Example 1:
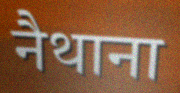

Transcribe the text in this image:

नैथाना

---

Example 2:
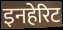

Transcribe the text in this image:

इनहेरिट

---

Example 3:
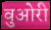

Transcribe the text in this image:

वुओरी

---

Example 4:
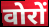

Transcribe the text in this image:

वोरों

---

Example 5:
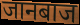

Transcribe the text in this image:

जानबाज